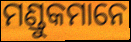
ମଣ୍ଡୁକମାନେ